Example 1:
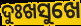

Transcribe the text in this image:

ଦୁଃଖସୁଖେ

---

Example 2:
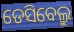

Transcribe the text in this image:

ଡେସିବେଲ୍ରୁ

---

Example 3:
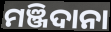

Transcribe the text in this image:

ମଞ୍ଜିଦାନା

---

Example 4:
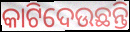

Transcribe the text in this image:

କାଟିଦେଉଛନ୍ତି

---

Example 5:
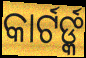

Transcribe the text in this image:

କାର୍ଟର୍ଙ୍କ